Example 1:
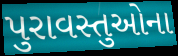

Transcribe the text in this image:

પુરાવસ્તુઓના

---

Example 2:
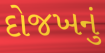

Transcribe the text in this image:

દોજખનું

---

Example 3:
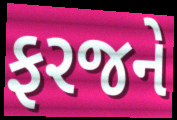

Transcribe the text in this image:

ફરજને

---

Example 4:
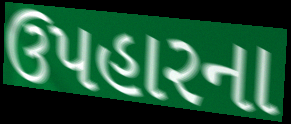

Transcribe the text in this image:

ઉપહારના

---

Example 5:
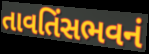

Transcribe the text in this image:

તાવતિંસભવનં